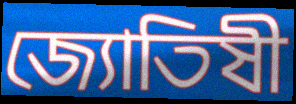
জ্যোতিষী